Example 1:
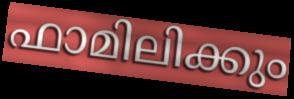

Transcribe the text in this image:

ഫാമിലിക്കും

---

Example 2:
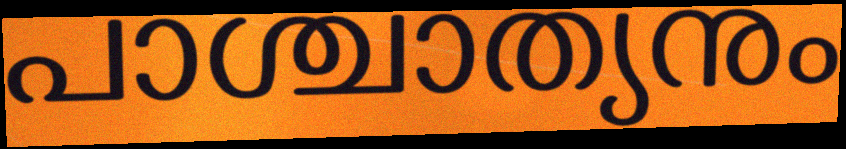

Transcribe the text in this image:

പാശ്ചാത്യനും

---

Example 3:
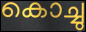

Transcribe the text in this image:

കൊച്ചു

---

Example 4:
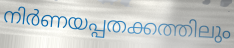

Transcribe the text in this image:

നിർണയപ്പതക്കത്തിലും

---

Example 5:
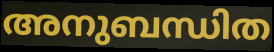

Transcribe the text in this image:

അനുബന്ധിത